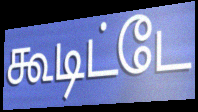
கூடிட்டே